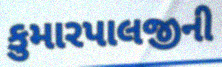
કુમારપાલજીની